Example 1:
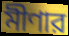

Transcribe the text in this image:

মীণার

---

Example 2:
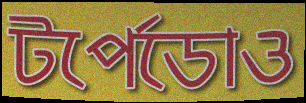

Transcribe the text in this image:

টর্পেডোও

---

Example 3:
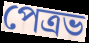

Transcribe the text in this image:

পেত্রভ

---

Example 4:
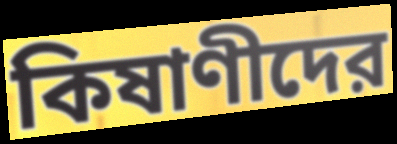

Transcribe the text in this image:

কিষাণীদের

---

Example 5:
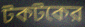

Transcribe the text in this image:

টকটকের